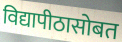
विद्यापीठासोबत